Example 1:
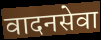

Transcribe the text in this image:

वादनसेवा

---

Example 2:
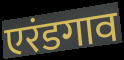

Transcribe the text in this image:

एरंडगाव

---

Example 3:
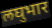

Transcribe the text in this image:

लघुभार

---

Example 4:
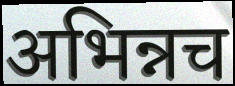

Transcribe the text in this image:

अभिन्नच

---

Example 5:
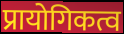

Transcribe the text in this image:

प्रायोगिकत्व